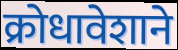
क्रोधावेशाने